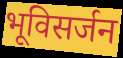
भूविसर्जन